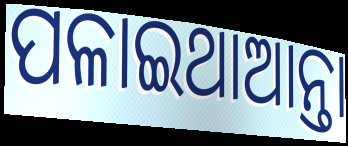
ପଳାଇଥାଆନ୍ତା